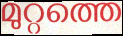
മുറ്റത്തെ